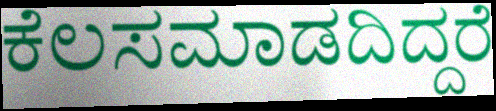
ಕೆಲಸಮಾಡದಿದ್ದರೆ